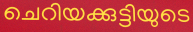
ചെറിയക്കുട്ടിയുടെ